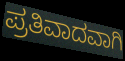
ಪ್ರತಿವಾದವಾಗಿ